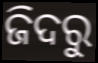
ଜିଦରୁ